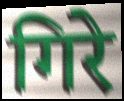
गिरे